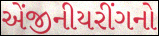
એંજીનીયરીંગનો